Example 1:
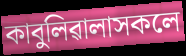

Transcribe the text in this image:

কাবুলিৱালাসকলে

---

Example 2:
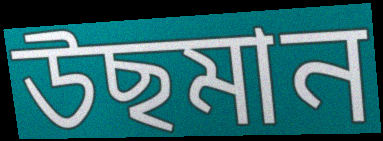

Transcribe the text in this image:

উছমান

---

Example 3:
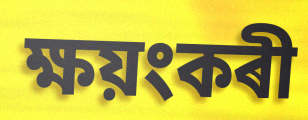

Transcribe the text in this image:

ক্ষয়ংকৰী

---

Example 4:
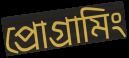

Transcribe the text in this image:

প্ৰোগ্ৰামিং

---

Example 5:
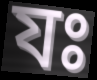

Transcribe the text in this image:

যঃ